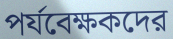
পর্যবেক্ষকদের